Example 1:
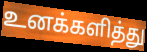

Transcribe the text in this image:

உனக்களித்து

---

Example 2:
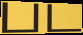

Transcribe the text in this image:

பட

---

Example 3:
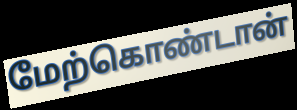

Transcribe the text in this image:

மேற்கொண்டான்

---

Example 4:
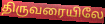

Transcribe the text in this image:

திருவரையிலே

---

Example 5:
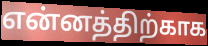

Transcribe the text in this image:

என்னத்திற்காக